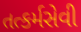
તત્કર્મસેવી